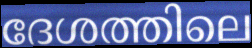
ദേശത്തിലെ